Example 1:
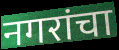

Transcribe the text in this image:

नगरांचा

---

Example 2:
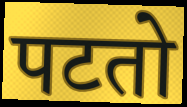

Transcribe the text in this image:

पटतो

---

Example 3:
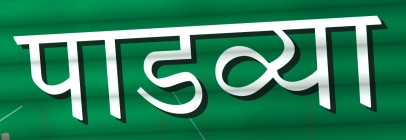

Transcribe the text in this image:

पाडव्या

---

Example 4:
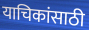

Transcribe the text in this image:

याचिकांसाठी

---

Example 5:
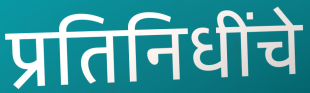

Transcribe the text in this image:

प्रतिनिधींचे